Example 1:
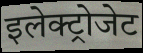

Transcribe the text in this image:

इलेक्ट्रोजेट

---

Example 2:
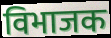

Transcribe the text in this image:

विभाजक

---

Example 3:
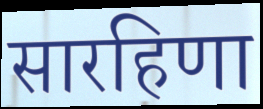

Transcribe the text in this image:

सारहिणा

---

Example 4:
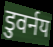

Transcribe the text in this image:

डुवर्नय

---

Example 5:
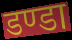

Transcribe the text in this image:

डण्डा